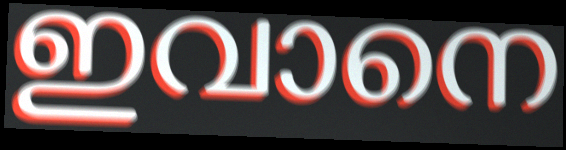
ഇവാനെ